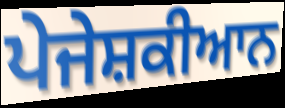
ਪੇਜੇਸ਼ਕੀਆਨ